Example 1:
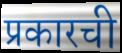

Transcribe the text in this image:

प्रकारची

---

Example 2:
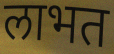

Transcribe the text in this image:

लाभत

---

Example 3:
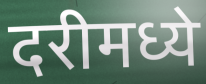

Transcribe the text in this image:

दरीमध्ये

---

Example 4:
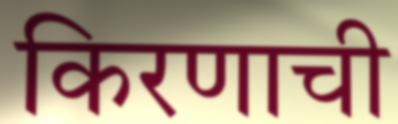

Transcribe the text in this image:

किरणाची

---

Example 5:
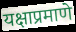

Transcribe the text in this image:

यक्षाप्रमाणे